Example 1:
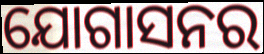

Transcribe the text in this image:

ଯୋଗାସନର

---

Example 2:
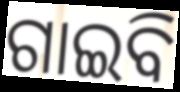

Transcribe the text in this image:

ଗାଇବି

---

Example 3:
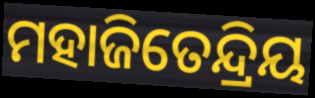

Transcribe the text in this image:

ମହାଜିତେନ୍ଦ୍ରିୟ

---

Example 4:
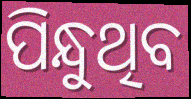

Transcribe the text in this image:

ପିନ୍ଧୁଥିବ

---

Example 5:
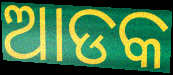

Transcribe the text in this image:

ଆଡକ